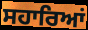
ਸਹਾਰਿਆਂ